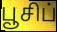
பூசிப்